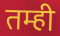
तम्ही